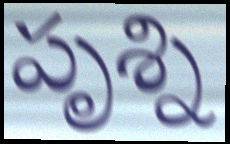
పృశ్ని